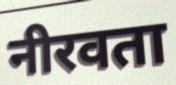
नीरवता